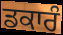
ਡਕਾਰੰ